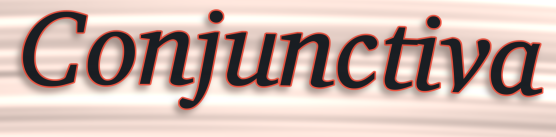
Conjunctiva